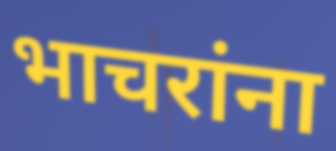
भाचरांना